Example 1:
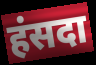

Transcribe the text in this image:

हंसदा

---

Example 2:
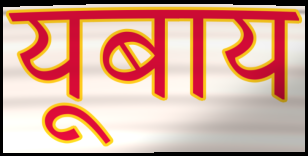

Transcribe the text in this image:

यूबाय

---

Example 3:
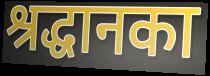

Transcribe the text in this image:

श्रद्धानका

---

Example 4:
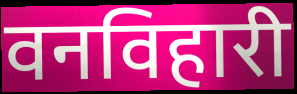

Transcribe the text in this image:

वनविहारी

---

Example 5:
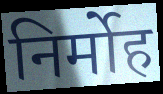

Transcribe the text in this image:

निर्मोह